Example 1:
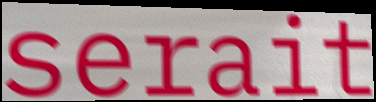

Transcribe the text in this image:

serait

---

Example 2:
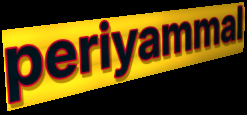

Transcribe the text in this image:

periyammal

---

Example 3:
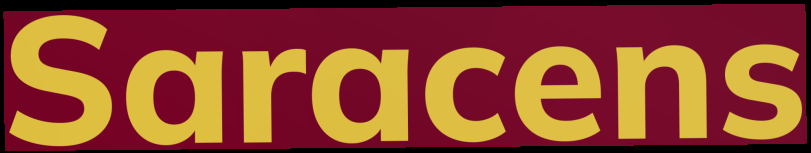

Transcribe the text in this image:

Saracens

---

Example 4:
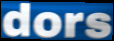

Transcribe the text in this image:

dors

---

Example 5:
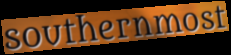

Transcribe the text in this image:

southernmost